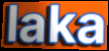
laka